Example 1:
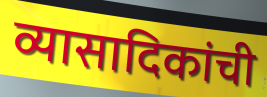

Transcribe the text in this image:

व्यासादिकांची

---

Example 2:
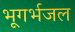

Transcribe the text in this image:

भूगर्भजल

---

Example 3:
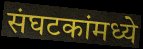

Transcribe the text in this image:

संघटकांमध्ये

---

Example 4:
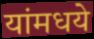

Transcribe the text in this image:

यांमधये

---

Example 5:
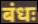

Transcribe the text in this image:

बंधः